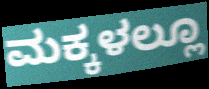
ಮಕ್ಕಳಲ್ಲೂ